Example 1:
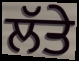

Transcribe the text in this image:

ਲੱਤੇ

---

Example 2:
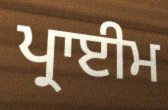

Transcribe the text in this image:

ਪ੍ਰਾਈਮ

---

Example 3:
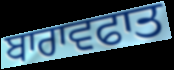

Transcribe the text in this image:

ਬਾਰਾਵਫਾਤ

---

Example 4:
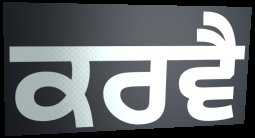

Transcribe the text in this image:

ਕਰਵੈ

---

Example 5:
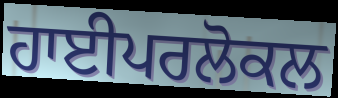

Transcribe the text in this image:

ਹਾਈਪਰਲੋਕਲ